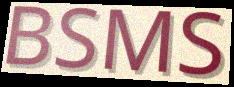
BSMS